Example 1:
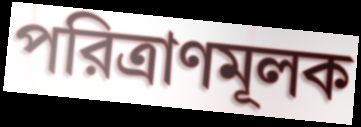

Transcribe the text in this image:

পরিত্রাণমূলক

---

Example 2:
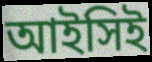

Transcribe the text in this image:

আইসিই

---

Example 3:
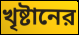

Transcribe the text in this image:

খৃষ্টানের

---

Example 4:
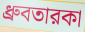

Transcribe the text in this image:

ধ্রুবতারকা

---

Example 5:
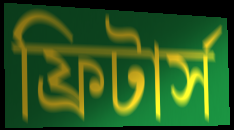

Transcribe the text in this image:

ফ্রিটার্স